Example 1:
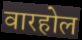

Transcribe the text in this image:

वारहोल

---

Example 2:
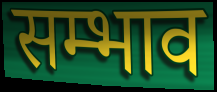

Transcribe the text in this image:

सम्भाव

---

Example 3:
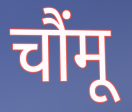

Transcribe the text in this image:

चौंमू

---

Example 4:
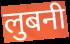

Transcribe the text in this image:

लुबनी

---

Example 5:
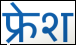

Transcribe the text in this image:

फ्रेश